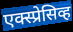
एक्स्प्रेसिव्ह